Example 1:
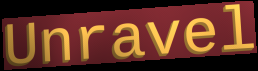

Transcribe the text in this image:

Unravel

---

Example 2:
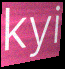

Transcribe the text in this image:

kyi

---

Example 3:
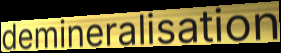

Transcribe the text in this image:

demineralisation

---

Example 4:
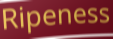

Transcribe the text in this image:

Ripeness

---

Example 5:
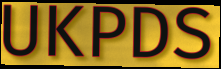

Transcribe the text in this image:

UKPDS